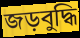
জড়বুদ্ধি